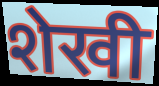
शेखी